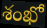
శంఖో